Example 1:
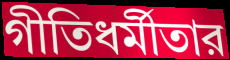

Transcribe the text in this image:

গীতিধর্মীতার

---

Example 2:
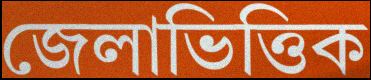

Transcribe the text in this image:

জেলাভিত্তিক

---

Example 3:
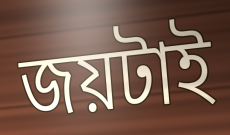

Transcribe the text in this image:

জয়টাই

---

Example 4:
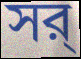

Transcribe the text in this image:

সর্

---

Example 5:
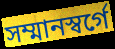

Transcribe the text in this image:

সম্মানস্বর্গে